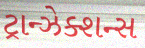
ટ્રાન્ઝેક્શન્સ